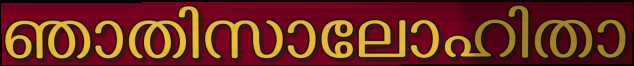
ഞാതിസാലോഹിതാ